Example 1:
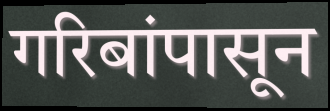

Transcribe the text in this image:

गरिबांपासून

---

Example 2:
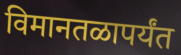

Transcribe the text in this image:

विमानतळापर्यंत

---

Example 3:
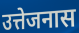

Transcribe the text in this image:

उत्तेजनास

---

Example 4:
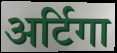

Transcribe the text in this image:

अर्टिगा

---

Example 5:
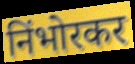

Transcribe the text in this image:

निंभोरकर